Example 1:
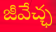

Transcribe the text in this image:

జీవేచ్ఛ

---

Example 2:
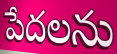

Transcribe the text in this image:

పేదలను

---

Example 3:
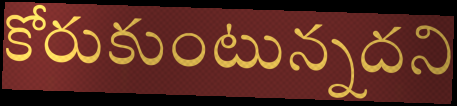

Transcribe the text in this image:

కోరుకుంటున్నదని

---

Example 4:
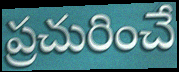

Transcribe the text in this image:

ప్రచురించే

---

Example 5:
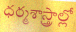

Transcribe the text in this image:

ధర్మశాస్త్రాల్లో